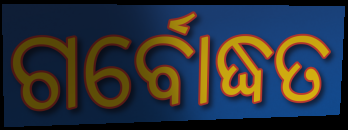
ଗର୍ବୋଦ୍ଧତ